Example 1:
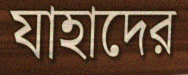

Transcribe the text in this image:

যাহাদের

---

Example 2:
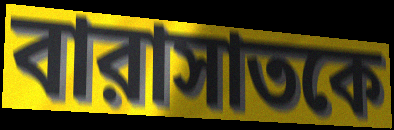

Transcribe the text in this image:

বারাসাতকে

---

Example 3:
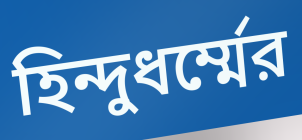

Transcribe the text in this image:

হিন্দুধর্ম্মের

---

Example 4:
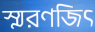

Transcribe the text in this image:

স্মরণজিৎ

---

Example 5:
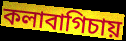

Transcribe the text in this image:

কলাবাগিচায়